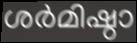
ശർമിഷ്ഠാ